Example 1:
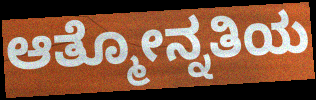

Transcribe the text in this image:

ಆತ್ಮೋನ್ನತಿಯ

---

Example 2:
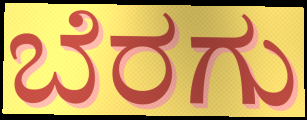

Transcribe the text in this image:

ಬೆರಗು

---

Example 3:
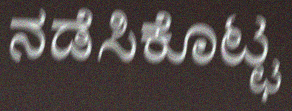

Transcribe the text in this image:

ನಡೆಸಿಕೊಟ್ಟ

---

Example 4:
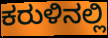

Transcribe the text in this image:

ಕರುಳಿನಲ್ಲಿ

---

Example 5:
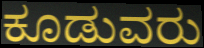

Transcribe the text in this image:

ಕೂಡುವರು